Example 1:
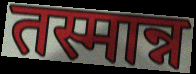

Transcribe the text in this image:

तस्मान्न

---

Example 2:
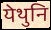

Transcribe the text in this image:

येथुनि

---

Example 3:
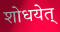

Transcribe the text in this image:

शोधयेत्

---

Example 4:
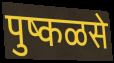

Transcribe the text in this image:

पुष्कळसे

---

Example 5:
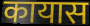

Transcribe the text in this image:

कायास